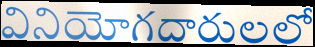
వినియోగదారులలో